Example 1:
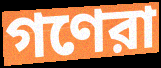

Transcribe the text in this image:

গণেরা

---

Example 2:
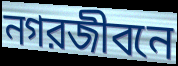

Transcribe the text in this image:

নগরজীবনে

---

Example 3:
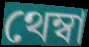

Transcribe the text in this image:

থেম্বা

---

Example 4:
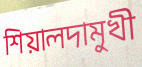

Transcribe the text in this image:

শিয়ালদামুখী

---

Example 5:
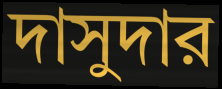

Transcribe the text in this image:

দাসুদার